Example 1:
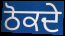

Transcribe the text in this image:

ਠੋਕਦੇ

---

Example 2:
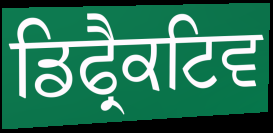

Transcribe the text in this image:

ਡਿਫ੍ਰੈਕਟਿਵ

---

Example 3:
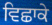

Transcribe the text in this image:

ਵਿਛਾਕੇ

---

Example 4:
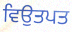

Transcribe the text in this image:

ਵਿਉਤਪਤ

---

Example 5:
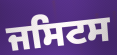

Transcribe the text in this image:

ਜਸਿਟਸ